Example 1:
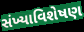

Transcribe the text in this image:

સંખ્યાવિશેષણ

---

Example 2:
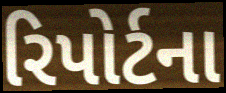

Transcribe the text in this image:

રિપોર્ટના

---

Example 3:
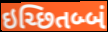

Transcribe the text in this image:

ઇચ્છિતબ્બં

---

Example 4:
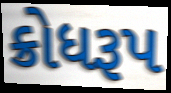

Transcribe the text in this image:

ક્રોધરૂપ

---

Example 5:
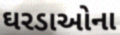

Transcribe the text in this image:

ઘરડાઓના